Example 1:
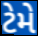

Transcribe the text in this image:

ટેમે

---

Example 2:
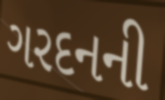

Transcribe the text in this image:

ગરદનની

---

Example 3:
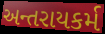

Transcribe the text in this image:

અન્તરાયકર્મ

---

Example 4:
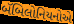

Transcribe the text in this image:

બૅબિલોનિયનોએ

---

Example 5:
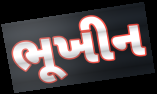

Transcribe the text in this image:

ભૂખીન